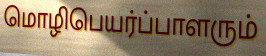
மொழிபெயர்ப்பாளரும்